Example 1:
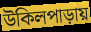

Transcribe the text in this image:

উকিলপাড়ায়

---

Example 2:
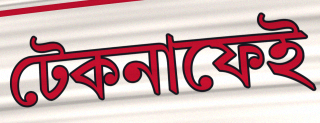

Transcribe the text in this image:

টেকনাফেই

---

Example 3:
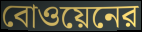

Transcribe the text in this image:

বোওয়েনের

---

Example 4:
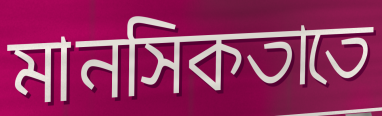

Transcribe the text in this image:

মানসিকতাতে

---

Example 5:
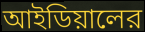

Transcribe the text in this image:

আইডিয়ালের